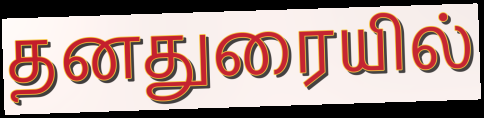
தனதுரையில்